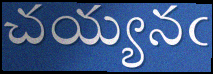
చయ్యనఁ